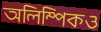
অলিম্পিকও